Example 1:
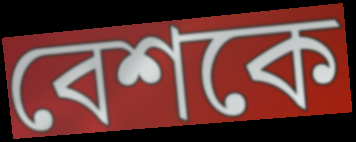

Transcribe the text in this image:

বেশকে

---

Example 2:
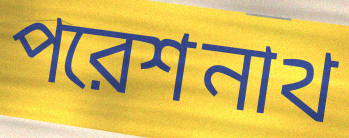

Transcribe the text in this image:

পরেশনাথ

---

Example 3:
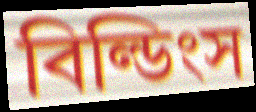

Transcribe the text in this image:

বিল্ডিংস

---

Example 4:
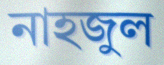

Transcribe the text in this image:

নাহজুল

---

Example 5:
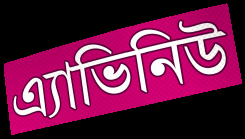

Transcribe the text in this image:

এ্যাভিনিউ